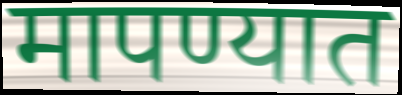
मापण्यात